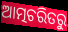
ଆତ୍ମଚରିତରୁ